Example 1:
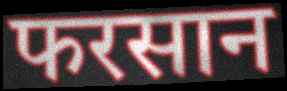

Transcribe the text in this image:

फरसान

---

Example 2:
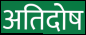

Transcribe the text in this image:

अतिदोष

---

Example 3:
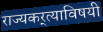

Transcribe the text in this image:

राज्यकर्त्याविषयी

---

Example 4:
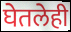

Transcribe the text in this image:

घेतलेही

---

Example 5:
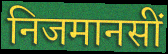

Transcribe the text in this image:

निजमानसीं